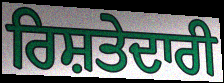
ਰਿਸ਼ਤੇਦਾਰੀ